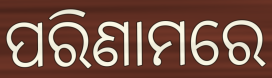
ପରିଣାମରେ